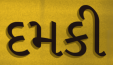
દમકી